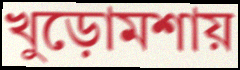
খুড়োমশায়